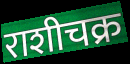
राशीचक्र